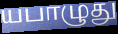
யபாழுது